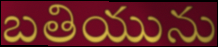
బతియును